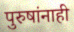
पुरुषांनाही